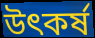
উৎকর্ষ